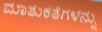
ಮಾತುಕತೆಗಳನ್ನು